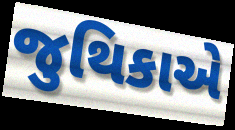
જુથિકાએ